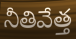
నీతివేత్త